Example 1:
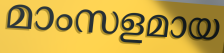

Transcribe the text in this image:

മാംസളമായ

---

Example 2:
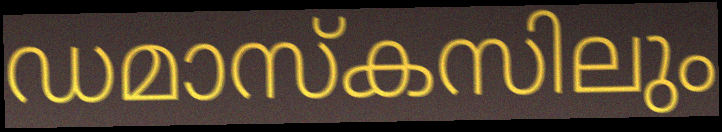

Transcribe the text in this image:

ഡമാസ്കസിലും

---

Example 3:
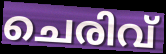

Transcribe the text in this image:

ചെരിവ്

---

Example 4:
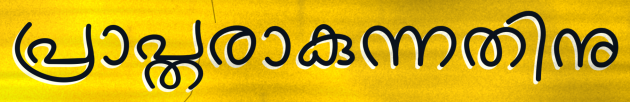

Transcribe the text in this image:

പ്രാപ്തരാകുന്നതിനു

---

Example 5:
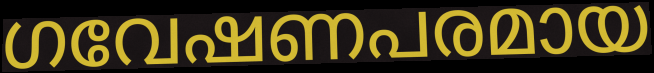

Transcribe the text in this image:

ഗവേഷണപരമായ